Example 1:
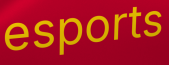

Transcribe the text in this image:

esports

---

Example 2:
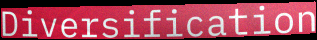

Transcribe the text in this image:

Diversification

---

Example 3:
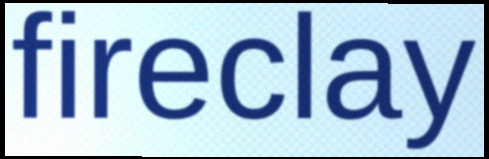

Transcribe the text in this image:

fireclay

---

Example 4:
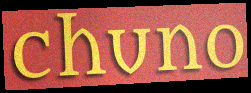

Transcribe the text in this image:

chuno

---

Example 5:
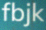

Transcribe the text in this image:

fbjk